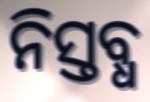
ନିସ୍ତବ୍ଧ